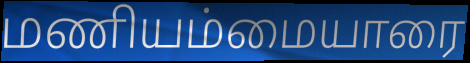
மணியம்மையாரை